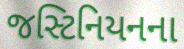
જસ્ટિનિયનના